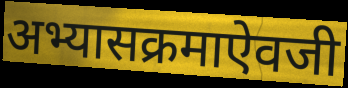
अभ्यासक्रमाऐवजी